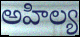
అహిల్య